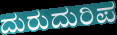
ದುರುದುರಿಪ